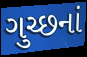
ગુચ્છનાં